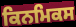
ਕਿਨਮਿਕਸ